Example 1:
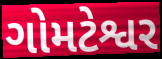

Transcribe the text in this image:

ગોમટેશ્વર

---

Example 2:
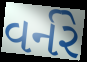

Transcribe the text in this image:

વર્નરે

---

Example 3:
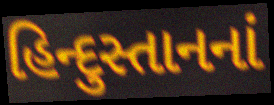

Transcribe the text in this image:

હિન્દુસ્તાનનાં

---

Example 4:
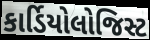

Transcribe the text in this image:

કાર્ડિયોલોજિસ્ટ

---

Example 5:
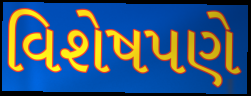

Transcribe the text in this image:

વિશેષપણે